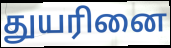
துயரினை